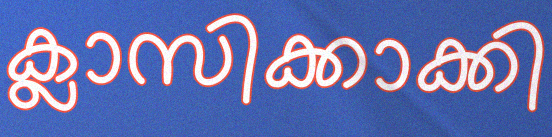
ക്ലാസിക്കാക്കി